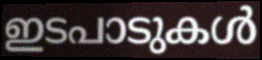
ഇടപാടുകൾ